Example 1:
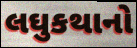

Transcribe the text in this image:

લઘુકથાનો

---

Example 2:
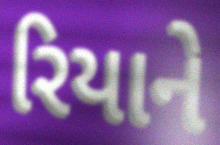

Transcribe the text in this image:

રિયાને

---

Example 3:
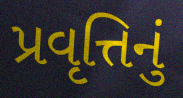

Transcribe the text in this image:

પ્રવૃત્તિનું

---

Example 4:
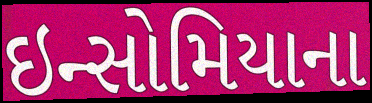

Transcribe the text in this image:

ઇન્સોમિયાના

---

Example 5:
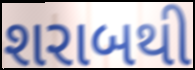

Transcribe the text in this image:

શરાબથી